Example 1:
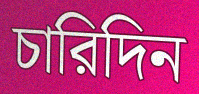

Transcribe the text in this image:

চারিদিন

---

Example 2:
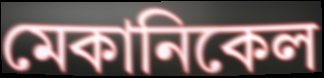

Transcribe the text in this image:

মেকানিকেল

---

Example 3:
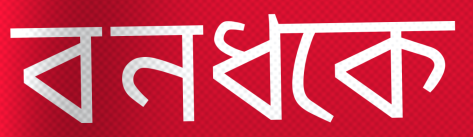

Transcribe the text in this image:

বনধকে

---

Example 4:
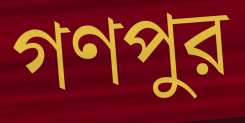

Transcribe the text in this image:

গণপুর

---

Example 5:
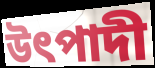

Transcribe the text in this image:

উৎপাদী